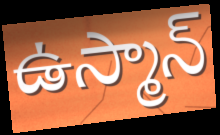
ఉస్మాన్